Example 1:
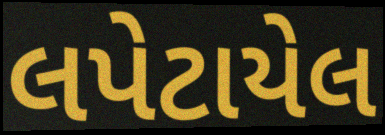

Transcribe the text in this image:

લપેટાયેલ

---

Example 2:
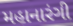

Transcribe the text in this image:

મહાનારંગી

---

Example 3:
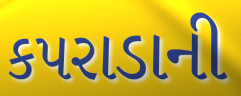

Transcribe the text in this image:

કપરાડાની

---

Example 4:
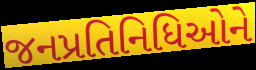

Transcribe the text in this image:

જનપ્રતિનિધિઓને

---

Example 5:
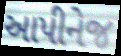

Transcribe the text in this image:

આપીનેજ